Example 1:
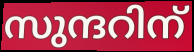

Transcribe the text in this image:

സുന്ദറിന്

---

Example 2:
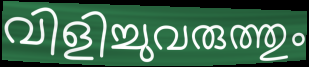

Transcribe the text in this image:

വിളിച്ചുവരുത്തും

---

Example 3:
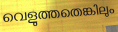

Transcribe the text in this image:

വെളുത്തതെങ്കിലും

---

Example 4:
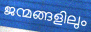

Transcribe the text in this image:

ജന്മങ്ങളിലും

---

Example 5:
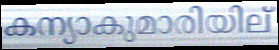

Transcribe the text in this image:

കന്യാകുമാരിയില്